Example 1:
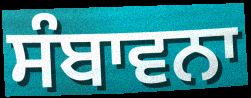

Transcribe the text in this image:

ਸੰਬਾਵਨਾ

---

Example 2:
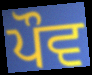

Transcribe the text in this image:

ਪੌਵ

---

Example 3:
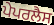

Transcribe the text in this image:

ਪੇਪਰਲੈਸ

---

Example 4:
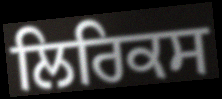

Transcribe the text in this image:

ਲਿਰਿਕਸ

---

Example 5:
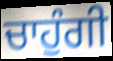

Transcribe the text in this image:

ਚਾਹੁੰਗੀ